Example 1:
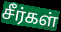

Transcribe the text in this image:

சீர்கள்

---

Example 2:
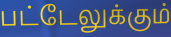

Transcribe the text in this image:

பட்டேலுக்கும்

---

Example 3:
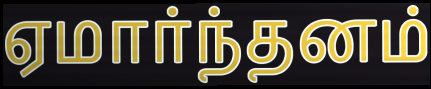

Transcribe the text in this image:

ஏமார்ந்தனம்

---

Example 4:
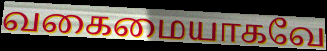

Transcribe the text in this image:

வகைமையாகவே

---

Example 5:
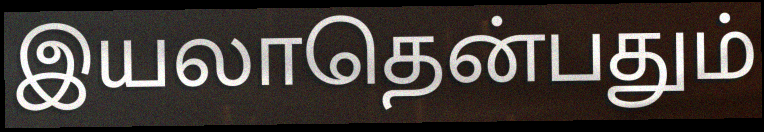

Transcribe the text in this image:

இயலாதென்பதும்